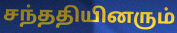
சந்ததியினரும்